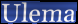
Ulema